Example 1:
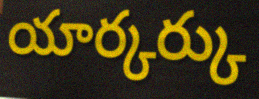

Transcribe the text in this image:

యార్కర్కు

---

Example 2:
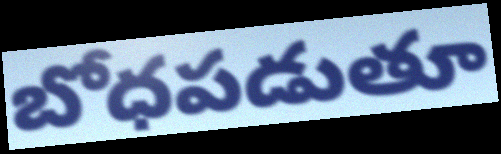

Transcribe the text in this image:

బోధపడుతూ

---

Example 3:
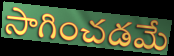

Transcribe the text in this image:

సాగించడమే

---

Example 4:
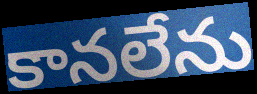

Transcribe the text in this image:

కానలేను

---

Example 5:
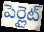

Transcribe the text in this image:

పెర్లైట్